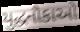
યુદ્ધનૌકાઓ